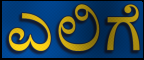
ಎಲಿಗೆ